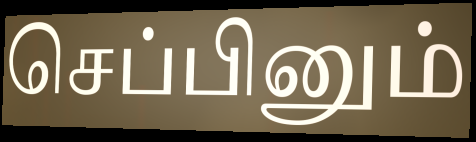
செப்பினும்